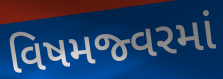
વિષમજ્વરમાં